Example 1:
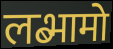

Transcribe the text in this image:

लब्भामो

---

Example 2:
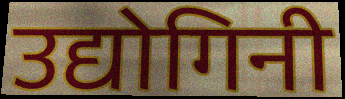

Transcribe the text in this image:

उद्योगिनी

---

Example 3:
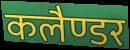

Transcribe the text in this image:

कलैण्डर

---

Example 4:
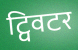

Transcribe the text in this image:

ट्विवटर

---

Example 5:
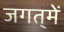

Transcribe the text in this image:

जगत्‌में